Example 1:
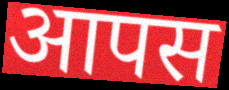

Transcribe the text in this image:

आपस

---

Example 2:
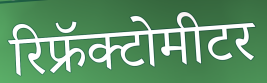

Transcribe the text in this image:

रिफ्रॅक्टोमीटर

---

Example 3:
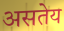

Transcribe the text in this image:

असतेय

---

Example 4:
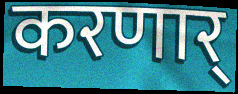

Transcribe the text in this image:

करणार्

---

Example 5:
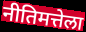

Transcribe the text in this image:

नीतिमत्तेला